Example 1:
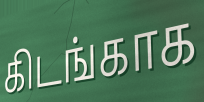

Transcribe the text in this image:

கிடங்காக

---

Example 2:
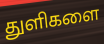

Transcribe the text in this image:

துளிகளை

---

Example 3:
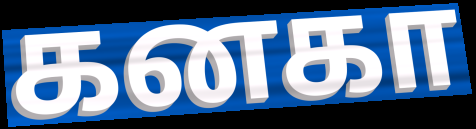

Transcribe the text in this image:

கனகா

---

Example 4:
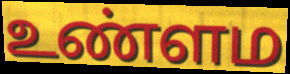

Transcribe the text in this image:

உண்ளம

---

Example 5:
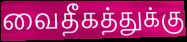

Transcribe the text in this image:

வைதீகத்துக்கு